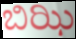
ಬಿಝಿ